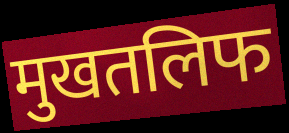
मुखतलिफ